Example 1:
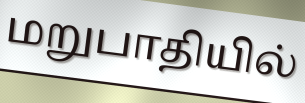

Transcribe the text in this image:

மறுபாதியில்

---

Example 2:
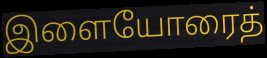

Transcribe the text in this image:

இளையோரைத்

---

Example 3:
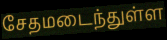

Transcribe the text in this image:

சேதமடைந்துள்ள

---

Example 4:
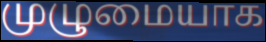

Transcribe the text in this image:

முழுமையாக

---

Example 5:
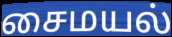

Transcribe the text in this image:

சைமயல்